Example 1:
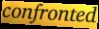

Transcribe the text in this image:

confronted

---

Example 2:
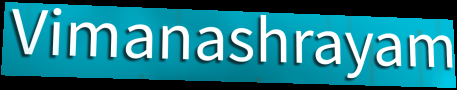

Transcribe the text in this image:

Vimanashrayam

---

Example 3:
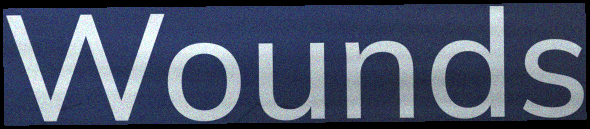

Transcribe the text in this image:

Wounds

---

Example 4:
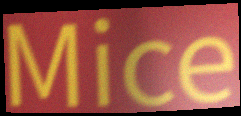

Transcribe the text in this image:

Mice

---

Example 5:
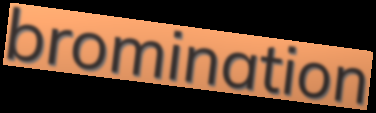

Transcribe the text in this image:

bromination